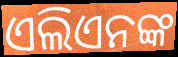
ଏଲିଏନଙ୍କ